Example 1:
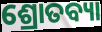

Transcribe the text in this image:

ଶ୍ରୋତବ୍ୟା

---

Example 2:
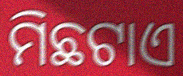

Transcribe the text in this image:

ମିଛଟାଏ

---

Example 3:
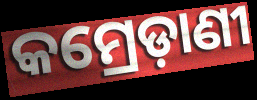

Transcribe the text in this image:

କମ୍ରେଡ଼ାଣୀ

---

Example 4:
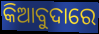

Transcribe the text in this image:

କିଆବୁଦାରେ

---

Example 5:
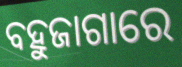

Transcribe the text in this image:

ବହୁଜାଗାରେ